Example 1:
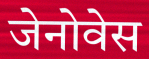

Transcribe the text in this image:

जेनोवेस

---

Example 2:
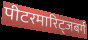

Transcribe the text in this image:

पीटरमारिट्जबर्ग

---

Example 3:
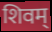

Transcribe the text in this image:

शिवम्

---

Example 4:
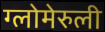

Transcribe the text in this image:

ग्लोमेरुली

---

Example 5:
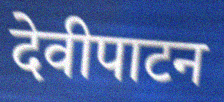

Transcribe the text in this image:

देवीपाटन